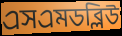
এসএমডব্লিউ